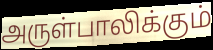
அருள்பாலிக்கும்